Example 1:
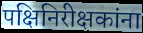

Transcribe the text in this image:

पक्षिनिरीक्षकांना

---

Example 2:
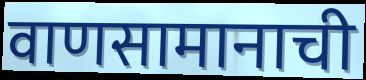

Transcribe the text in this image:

वाणसामानाची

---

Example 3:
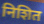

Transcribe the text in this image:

निशित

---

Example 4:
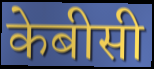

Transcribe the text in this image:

केबीसी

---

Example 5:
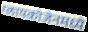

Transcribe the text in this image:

ग्लायकोजेनमध्ये